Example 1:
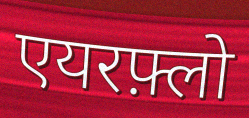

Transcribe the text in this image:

एयरफ़्लो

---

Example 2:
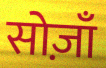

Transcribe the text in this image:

सोज़ाँ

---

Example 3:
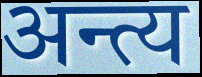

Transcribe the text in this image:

अन्त्य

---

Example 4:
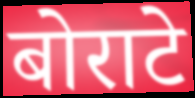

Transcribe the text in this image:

बोराटे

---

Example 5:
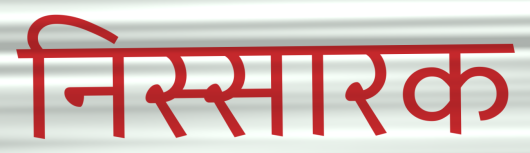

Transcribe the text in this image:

निस्सारक